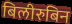
बिलीरुबिन